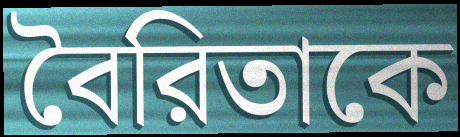
বৈরিতাকে